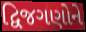
દ્વિજગણોને